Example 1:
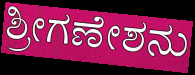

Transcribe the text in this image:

ಶ್ರೀಗಣೇಶನು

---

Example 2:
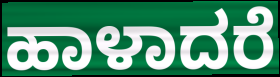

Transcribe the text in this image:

ಹಾಳಾದರೆ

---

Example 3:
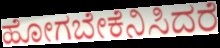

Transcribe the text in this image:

ಹೋಗಬೇಕೆನಿಸಿದರೆ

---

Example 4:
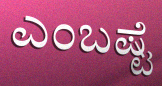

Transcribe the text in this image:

ಎಂಬಷ್ಟೆ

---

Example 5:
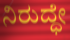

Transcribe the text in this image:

ನಿರುದ್ಧೇ